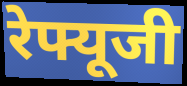
रेफ्यूजी